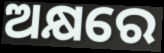
ଅକ୍ଷରେ